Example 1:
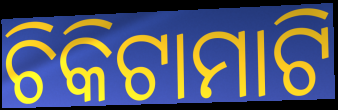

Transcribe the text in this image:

ଚିକିଟାମାଟି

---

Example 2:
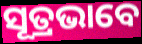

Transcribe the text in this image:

ସୂତ୍ରଭାବେ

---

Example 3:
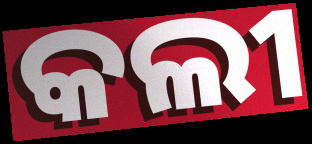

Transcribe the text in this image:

କଲୀ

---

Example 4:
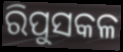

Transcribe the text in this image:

ରିପୁସକଳ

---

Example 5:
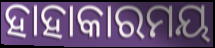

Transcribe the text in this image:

ହାହାକାରମୟ